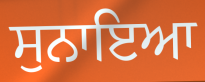
ਸੁਨਾਇਆ